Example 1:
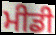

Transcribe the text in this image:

ਮੀਡੀ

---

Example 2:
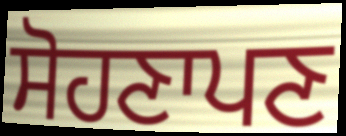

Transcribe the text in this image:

ਸੋਹਣਾਪਣ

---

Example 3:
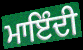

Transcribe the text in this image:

ਮਾਇੰਦੀ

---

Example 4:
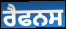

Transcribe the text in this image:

ਰੈਫਨਸ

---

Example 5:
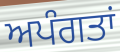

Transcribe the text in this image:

ਅਪੰਗਤਾਂ